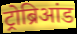
ट्रोब्रिआंड